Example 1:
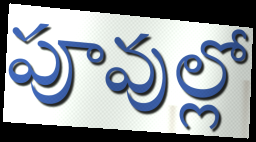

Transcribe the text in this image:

పూవుల్లో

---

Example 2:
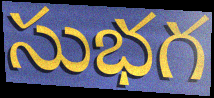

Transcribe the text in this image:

సుభగ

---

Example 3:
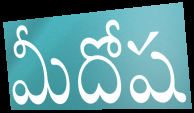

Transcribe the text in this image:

మీదోష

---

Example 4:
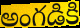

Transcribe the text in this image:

అంగడికి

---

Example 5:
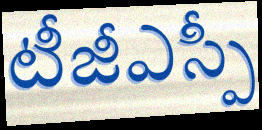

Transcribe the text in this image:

టీజీఎస్పీ